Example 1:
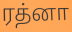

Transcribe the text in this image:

ரத்னா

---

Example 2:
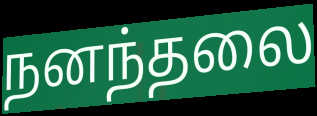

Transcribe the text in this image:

நனந்தலை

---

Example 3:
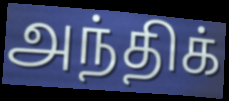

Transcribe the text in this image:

அந்திக்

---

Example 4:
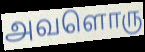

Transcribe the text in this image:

அவளொரு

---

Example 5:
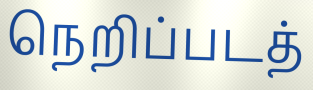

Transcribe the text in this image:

நெறிப்படத்